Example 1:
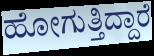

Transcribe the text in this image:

ಹೋಗುತ್ತಿದ್ದಾರೆ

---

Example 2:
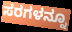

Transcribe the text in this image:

ಸರಗಳನ್ನೂ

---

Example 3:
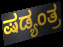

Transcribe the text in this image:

ಷಡ್ಯಂತ್ರ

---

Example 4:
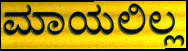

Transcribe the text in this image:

ಮಾಯಲಿಲ್ಲ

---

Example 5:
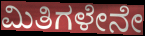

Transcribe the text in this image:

ಮಿತಿಗಳೇನೇ